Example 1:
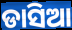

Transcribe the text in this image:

ଡାସିଆ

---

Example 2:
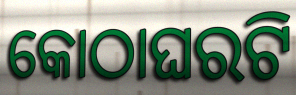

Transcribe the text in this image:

କୋଠାଘରଟି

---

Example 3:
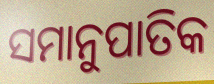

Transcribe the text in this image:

ସମାନୁପାତିକ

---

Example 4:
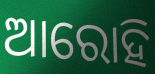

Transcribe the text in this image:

ଆରୋହି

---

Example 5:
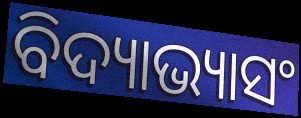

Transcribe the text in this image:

ବିଦ୍ୟାଭ୍ୟାସଂ